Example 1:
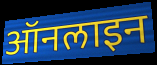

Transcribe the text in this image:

ऑनलाइन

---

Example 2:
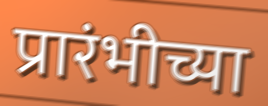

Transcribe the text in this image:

प्रारंभीच्या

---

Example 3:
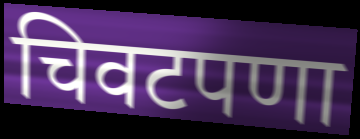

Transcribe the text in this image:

चिवटपणा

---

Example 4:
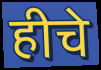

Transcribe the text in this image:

हीचे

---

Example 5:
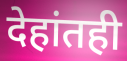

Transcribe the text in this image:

देहांतही